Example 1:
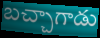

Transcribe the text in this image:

బచ్చాగాడు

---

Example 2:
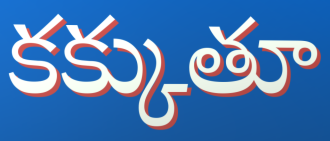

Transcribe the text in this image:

కక్కుతూ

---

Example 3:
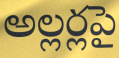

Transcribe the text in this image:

అల్లర్లపై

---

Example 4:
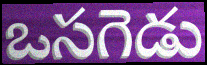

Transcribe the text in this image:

ఒసగెడు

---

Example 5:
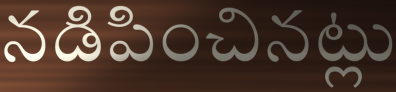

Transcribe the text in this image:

నడిపించినట్లు